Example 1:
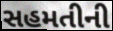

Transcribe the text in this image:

સહમતીની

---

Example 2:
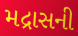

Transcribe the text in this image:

મદ્રાસની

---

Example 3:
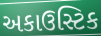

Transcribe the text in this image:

અકાઉસ્ટિક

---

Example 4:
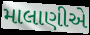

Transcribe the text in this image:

માલાણીએ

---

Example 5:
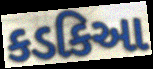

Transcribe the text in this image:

કડકિઆ